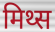
मिथ्स